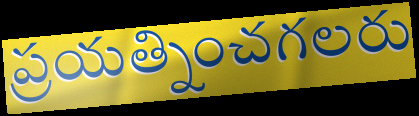
ప్రయత్నించగలరు